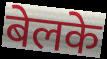
बेलके